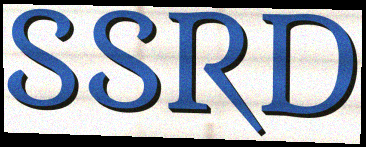
SSRD